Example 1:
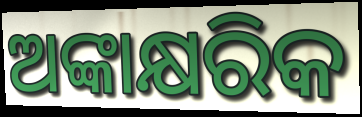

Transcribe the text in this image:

ଅଙ୍କାକ୍ଷରିକ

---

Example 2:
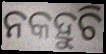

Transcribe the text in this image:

ନକହୁଚି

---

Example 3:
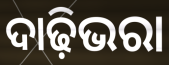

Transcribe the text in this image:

ଦାଢ଼ିଭରା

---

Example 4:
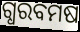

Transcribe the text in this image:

ଗ୍ଧରବମଷ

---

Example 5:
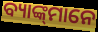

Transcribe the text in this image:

ବ୍ୟାଙ୍କ୍‌ମାନେ